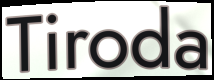
Tiroda